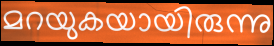
മറയുകയായിരുന്നു